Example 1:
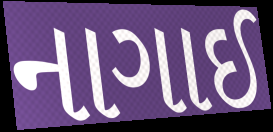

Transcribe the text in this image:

નાગાઈ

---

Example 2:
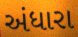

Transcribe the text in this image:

અંધારા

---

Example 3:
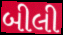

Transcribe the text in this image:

બીલી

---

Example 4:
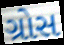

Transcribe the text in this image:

ગ્રોસ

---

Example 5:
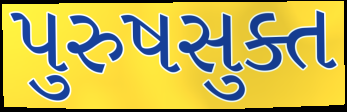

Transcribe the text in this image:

પુરુષસુક્ત